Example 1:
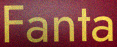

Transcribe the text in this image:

Fanta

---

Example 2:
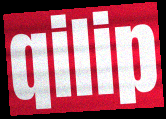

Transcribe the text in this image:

qilip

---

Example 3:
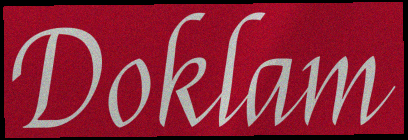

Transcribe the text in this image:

Doklam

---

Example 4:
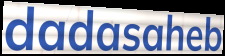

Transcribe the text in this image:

dadasaheb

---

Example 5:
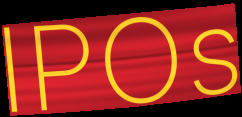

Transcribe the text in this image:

IPOs